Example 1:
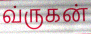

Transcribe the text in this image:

வ்ருகன்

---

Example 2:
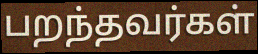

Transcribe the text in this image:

பறந்தவர்கள்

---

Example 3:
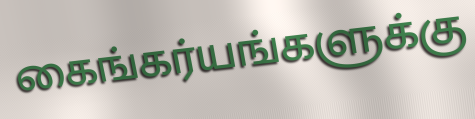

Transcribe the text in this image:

கைங்கர்யங்களுக்கு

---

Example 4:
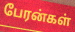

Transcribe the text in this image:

பேரன்கள்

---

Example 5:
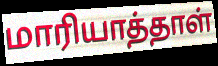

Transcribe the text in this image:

மாரியாத்தாள்